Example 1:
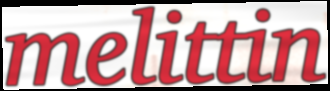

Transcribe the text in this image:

melittin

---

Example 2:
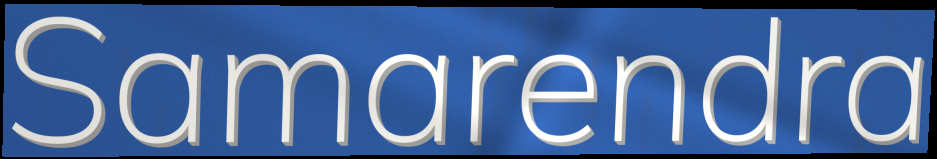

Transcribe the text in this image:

Samarendra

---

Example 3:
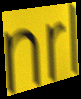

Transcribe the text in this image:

nrl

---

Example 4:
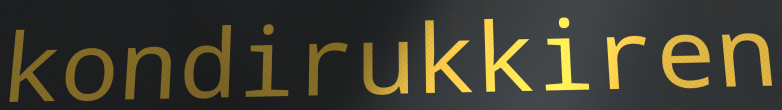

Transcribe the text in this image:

kondirukkiren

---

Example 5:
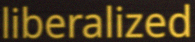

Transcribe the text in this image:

liberalized